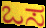
ಒಸ